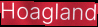
Hoagland